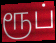
ரூப்